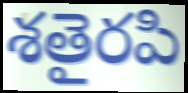
శతైరపి